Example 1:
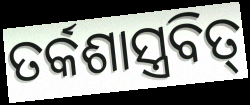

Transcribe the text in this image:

ତର୍କଶାସ୍ତ୍ରବିତ୍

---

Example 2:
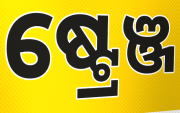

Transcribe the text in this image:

ଷ୍ଟ୍ରେଞ୍ଜ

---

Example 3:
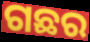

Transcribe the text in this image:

ଗଛର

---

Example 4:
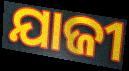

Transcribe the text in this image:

ଯାଜୀ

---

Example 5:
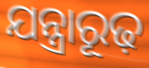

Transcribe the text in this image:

ଯନ୍ତ୍ରାରୂଢ଼